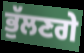
ਭੁੱਲਣਗੇ